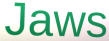
Jaws